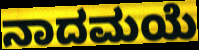
ನಾದಮಯೆ